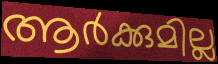
ആർക്കുമില്ല